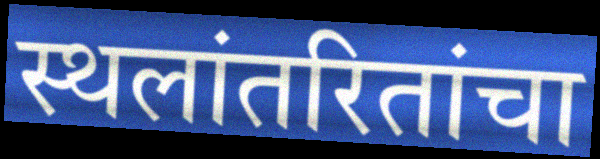
स्थलांतरितांचा